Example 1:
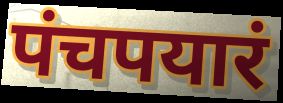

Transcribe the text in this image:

पंचपयारं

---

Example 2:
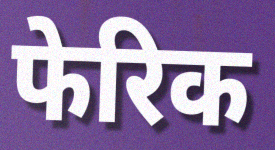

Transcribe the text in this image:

फेरिक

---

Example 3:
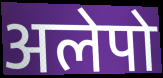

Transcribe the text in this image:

अलेपो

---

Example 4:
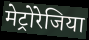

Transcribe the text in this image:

मेट्रोरेजिया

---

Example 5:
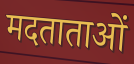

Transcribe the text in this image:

मदताताओं